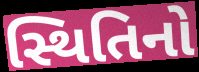
સ્થિતિનો